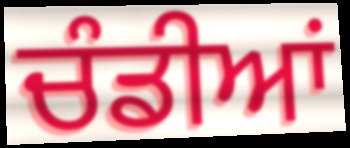
ਚੰਡੀਆਂ